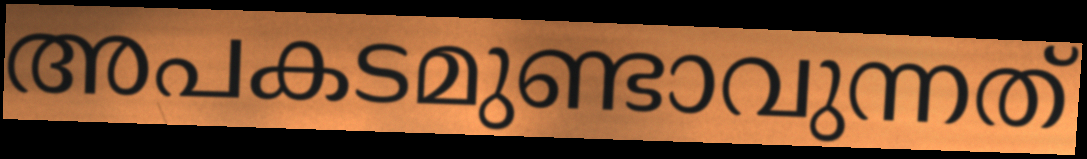
അപകടമുണ്ടാവുന്നത്